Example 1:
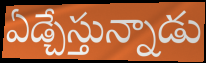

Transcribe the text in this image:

ఏడ్చేస్తున్నాడు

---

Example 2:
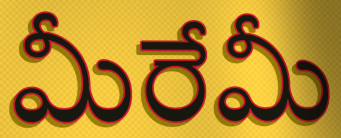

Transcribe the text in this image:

మీరేమీ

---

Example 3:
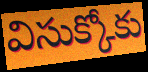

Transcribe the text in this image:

విసుక్కోకు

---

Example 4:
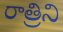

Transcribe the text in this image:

రాత్రిని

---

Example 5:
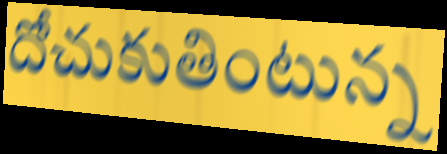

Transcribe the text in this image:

దోచుకుతింటున్న